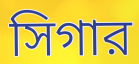
সিগার